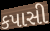
કપાસી